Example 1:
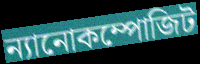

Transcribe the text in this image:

ন্যানোকম্পোজিট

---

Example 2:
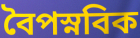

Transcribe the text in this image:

বৈপস্নবিক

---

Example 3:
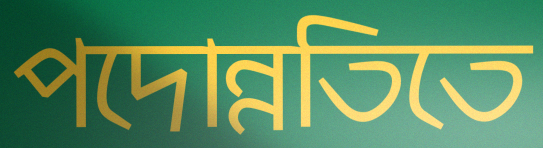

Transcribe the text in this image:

পদোন্নতিতে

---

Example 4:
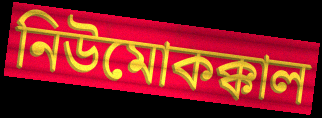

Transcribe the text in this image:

নিউমোকক্কাল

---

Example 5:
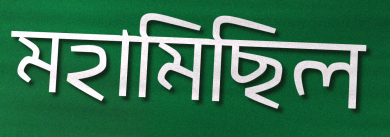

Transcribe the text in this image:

মহামিছিল